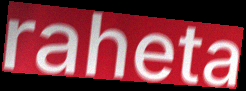
raheta